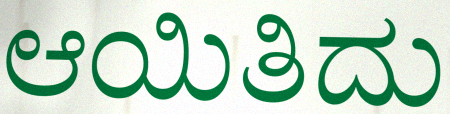
ಆಯಿತಿದು